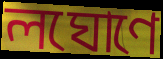
লঘোণে